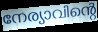
നേര്യാവിന്റെ